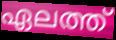
ഏലത്ത്